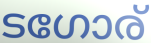
ടഗോര്